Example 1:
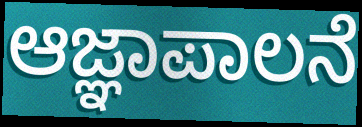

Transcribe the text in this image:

ಆಜ್ಞಾಪಾಲನೆ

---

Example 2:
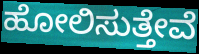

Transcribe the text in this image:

ಹೋಲಿಸುತ್ತೇವೆ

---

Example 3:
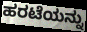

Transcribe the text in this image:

ಹರಟೆಯನ್ನು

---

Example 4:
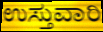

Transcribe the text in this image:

ಉಸ್ತುವಾರಿ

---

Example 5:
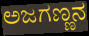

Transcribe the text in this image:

ಅಜಗಣ್ಣನ